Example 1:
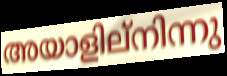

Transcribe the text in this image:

അയാളില്നിന്നു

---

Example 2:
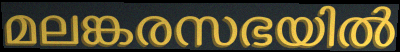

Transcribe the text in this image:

മലങ്കരസഭയിൽ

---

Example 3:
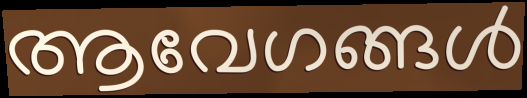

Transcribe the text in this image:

ആവേഗങ്ങൾ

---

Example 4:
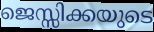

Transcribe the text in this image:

ജെസ്സിക്കയുടെ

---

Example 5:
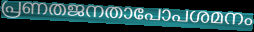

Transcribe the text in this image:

പ്രണതജനതാപോപശമനം